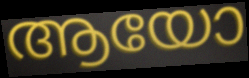
ആയോ